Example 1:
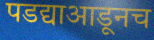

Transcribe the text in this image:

पडद्याआडूनच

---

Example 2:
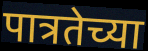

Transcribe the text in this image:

पात्रतेच्या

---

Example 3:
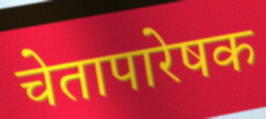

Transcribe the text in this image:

चेतापारेषक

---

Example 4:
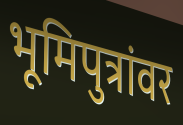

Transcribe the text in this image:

भूमिपुत्रांवर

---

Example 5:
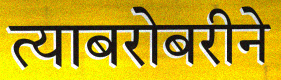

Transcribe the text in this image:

त्याबरोबरीने